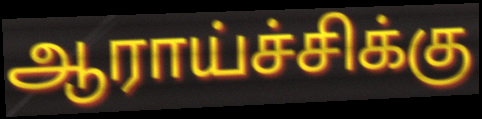
ஆராய்ச்சிக்கு